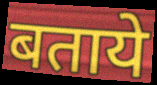
बताये